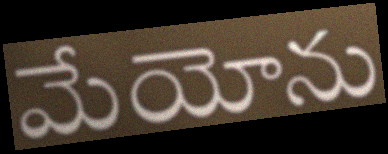
మేయోను